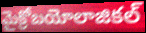
మైక్రోబయోలాజికల్